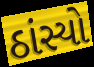
ઠાંસ્યો